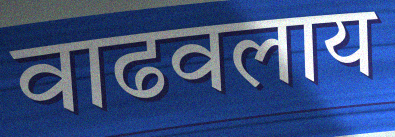
वाढवलाय